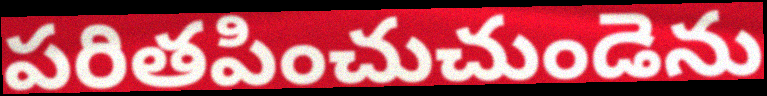
పరితపించుచుండెను